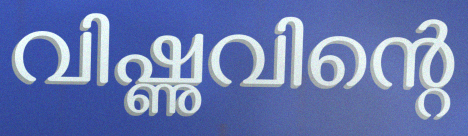
വിഷ്ണുവിന്റെ